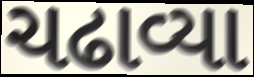
ચઢાવ્યા